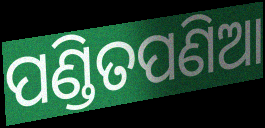
ପଣ୍ଡିତପଣିଆ